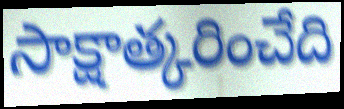
సాక్షాత్కరించేది